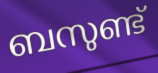
ബസുണ്ട്